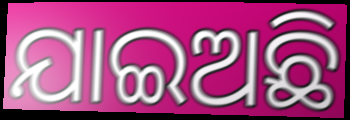
ଯାଇଅଛି